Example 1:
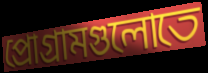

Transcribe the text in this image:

প্রোগ্রামগুলোতে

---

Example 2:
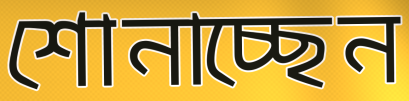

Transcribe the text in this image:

শোনাচ্ছেন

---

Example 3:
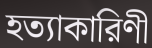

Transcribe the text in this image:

হত্যাকারিণী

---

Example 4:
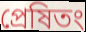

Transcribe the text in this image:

প্রেষিতং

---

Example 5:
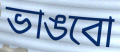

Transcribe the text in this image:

ভাঙবো